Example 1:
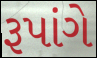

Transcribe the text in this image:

રૂપાંગે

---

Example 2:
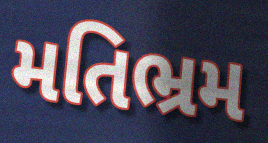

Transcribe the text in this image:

મતિભ્રમ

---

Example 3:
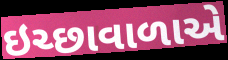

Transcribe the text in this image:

ઇચ્છાવાળાએ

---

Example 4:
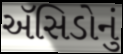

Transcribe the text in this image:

ઍસિડોનું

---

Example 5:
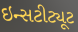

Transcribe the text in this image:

ઇન્સટીટ્યૂટ